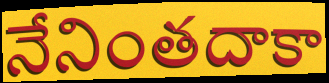
నేనింతదాకా